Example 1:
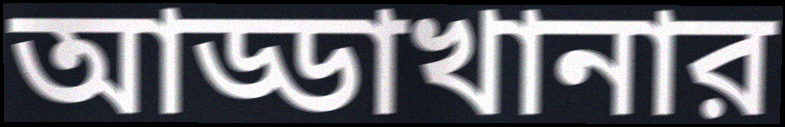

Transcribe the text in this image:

আড্ডাখানার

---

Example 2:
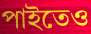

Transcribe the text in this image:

পাইতেও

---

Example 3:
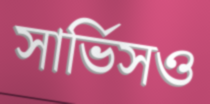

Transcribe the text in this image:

সার্ভিসও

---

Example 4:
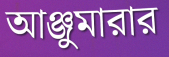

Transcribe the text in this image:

আঞ্জুমারার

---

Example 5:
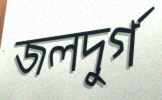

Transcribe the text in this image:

জলদুর্গ